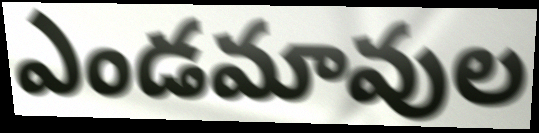
ఎండమావుల